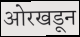
ओरखडून